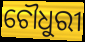
ଚୌଧୁରୀ